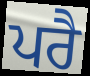
ਪਰੈ